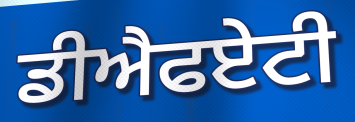
ਡੀਐਫਏਟੀ